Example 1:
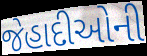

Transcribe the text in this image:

જેહાદીઓની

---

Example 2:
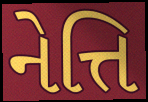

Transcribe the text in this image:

નેત્તિ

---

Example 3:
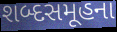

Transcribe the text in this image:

શબ્દસમૂહના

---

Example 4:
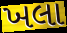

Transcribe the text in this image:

ખલા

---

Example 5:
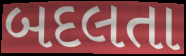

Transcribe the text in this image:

બદલતા